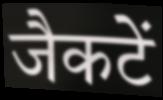
जैकटें